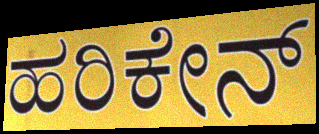
ಹರಿಕೇನ್